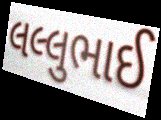
લલ્લુભાઈ